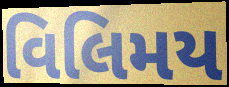
વિલિમય